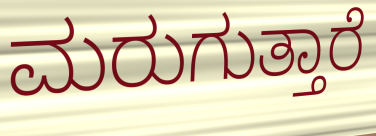
ಮರುಗುತ್ತಾರೆ